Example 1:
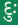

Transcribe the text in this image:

દુઃ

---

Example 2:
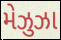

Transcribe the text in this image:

મેઝુઝા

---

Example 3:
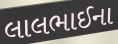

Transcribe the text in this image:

લાલભાઈના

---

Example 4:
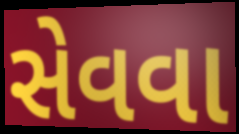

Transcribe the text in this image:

સેવવા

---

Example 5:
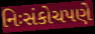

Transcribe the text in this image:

નિઃસંકોચપણે